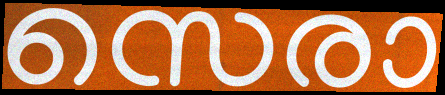
സെരാ